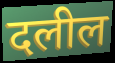
दलील